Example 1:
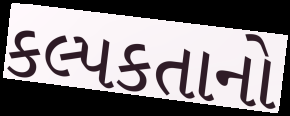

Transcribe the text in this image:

કલ્પકતાનો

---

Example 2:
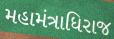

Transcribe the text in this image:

મહામંત્રાધિરાજ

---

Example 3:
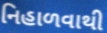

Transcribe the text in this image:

નિહાળવાથી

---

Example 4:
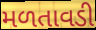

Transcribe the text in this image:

મળતાવડી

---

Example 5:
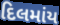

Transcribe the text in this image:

દિલમાંય